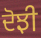
ਦੋਝੀ